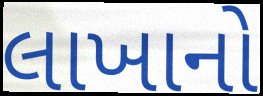
લાખાનો